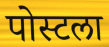
पोस्टला